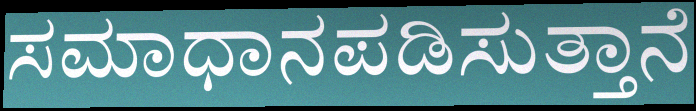
ಸಮಾಧಾನಪಡಿಸುತ್ತಾನೆ